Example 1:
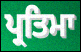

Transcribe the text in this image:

ਪ੍ਰਤਿਮਾ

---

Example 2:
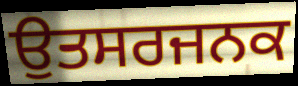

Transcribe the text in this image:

ਉਤਸਰਜਨਕ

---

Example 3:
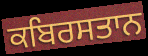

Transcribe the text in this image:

ਕਬਿਰਸਤਾਨ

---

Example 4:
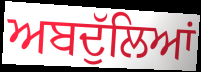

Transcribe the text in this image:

ਅਬਦੁੱਲਿਆਂ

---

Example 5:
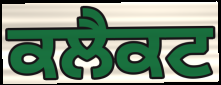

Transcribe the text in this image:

ਕਲੈਕਟ